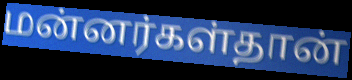
மன்னர்கள்தான்